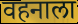
वहनाला